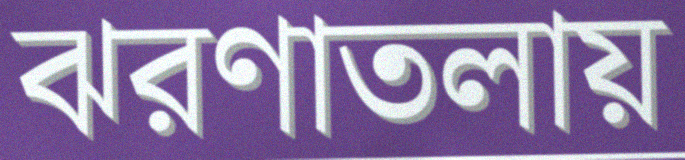
ঝরণাতলায়